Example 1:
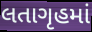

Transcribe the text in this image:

લતાગૃહમાં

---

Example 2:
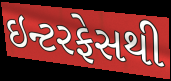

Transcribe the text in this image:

ઇન્ટરફેસથી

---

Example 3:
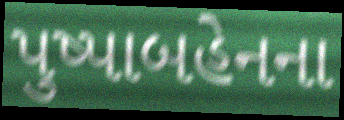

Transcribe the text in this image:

પુષ્પાબહેનના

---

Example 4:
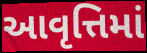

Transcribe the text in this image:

આવૃત્તિમાં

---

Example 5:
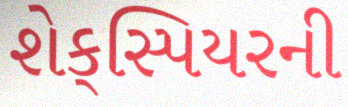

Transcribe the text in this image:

શેક્‌સ્પિયરની